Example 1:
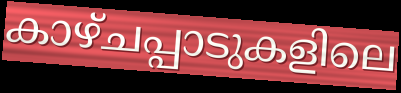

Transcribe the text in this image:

കാഴ്ചപ്പാടുകളിലെ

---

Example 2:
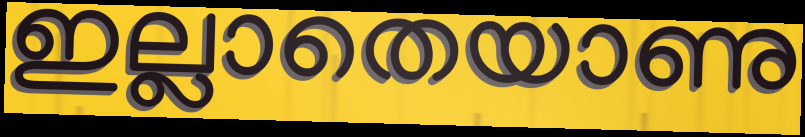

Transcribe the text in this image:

ഇല്ലാതെയാണു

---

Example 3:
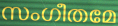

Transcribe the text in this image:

സംഗീതമേ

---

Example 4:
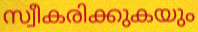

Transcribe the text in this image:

സ്വീകരിക്കുകയും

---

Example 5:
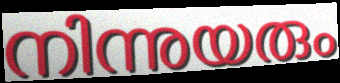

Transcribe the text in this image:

നിന്നുയരും